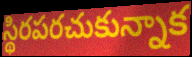
స్థిరపరచుకున్నాక